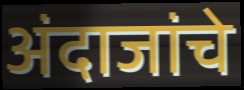
अंदाजांचे